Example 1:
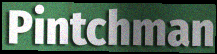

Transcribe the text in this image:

Pintchman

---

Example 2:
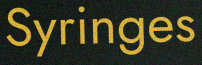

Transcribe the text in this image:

Syringes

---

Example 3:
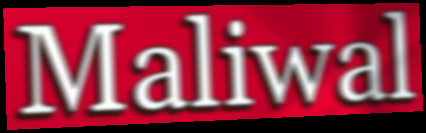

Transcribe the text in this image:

Maliwal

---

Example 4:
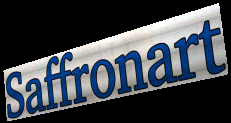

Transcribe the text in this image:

Saffronart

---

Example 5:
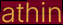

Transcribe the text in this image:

athin